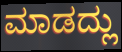
ಮಾಡದ್ಲು